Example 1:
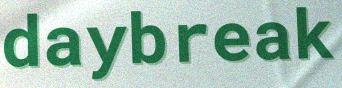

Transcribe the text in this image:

daybreak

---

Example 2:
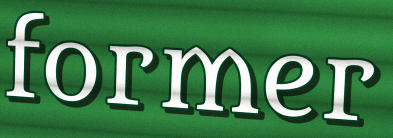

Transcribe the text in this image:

former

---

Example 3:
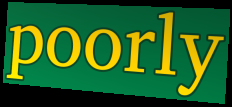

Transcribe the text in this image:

poorly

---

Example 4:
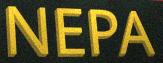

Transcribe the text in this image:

NEPA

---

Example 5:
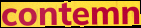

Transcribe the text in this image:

contemn